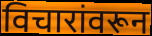
विचारांवरून